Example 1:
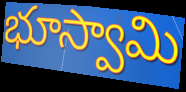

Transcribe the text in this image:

భూస్వామి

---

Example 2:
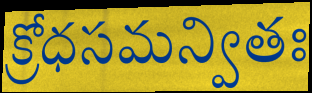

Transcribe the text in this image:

క్రోధసమన్వితః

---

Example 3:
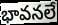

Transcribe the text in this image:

భావనలే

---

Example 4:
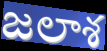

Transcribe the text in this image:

జలాశ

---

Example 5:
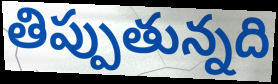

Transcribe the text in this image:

తిప్పుతున్నది